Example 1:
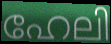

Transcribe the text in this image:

ഹേലി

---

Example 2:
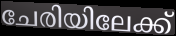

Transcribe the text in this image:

ചേരിയിലേക്ക്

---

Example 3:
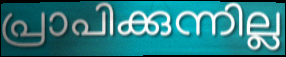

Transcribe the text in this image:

പ്രാപിക്കുന്നില്ല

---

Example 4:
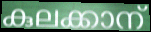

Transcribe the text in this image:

കുലക്കാന്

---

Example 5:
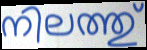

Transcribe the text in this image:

നിലത്തു്